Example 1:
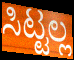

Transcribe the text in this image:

ಸಿಟ್ಟಲ್ಲ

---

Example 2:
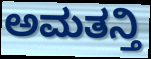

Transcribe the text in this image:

ಅಮತನ್ತಿ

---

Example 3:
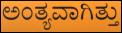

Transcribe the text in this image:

ಅಂತ್ಯವಾಗಿತ್ತು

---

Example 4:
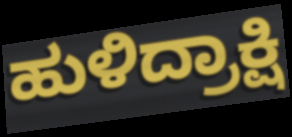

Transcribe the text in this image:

ಹುಳಿದ್ರಾಕ್ಷಿ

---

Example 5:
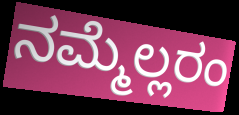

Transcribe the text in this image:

ನಮ್ಮೆಲ್ಲರಂ